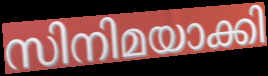
സിനിമയാക്കി